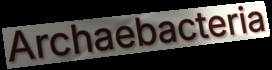
Archaebacteria